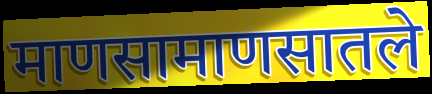
माणसामाणसातले